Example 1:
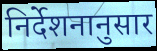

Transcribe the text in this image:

निर्देशनानुसार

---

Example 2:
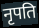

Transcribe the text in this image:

नृपति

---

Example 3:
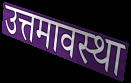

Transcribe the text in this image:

उत्तमावस्था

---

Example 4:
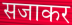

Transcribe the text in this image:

सजाकर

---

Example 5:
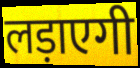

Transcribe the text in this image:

लड़ाएगी